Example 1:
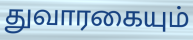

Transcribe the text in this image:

துவாரகையும்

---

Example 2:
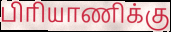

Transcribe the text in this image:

பிரியாணிக்கு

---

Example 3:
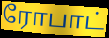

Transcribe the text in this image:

ரோபாட்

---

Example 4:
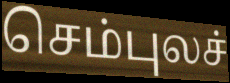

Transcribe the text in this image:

செம்புலச்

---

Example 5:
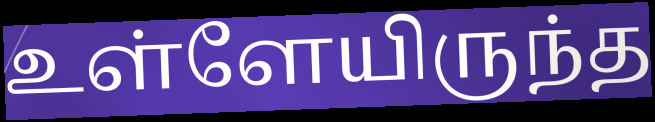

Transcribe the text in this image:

உள்ளேயிருந்த